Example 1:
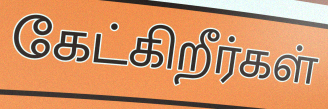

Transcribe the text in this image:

கேட்கிறீர்கள்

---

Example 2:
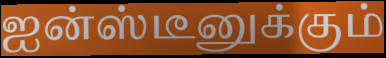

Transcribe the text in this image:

ஐன்ஸ்டீனுக்கும்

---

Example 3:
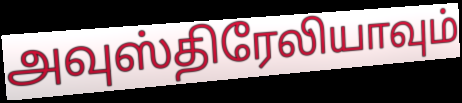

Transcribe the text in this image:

அவுஸ்திரேலியாவும்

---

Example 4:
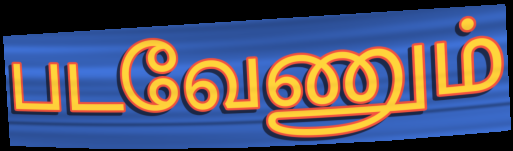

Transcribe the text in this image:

படவேணும்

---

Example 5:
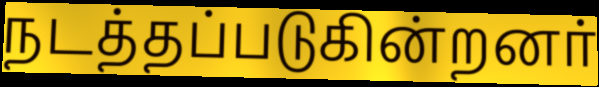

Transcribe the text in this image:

நடத்தப்படுகின்றனர்